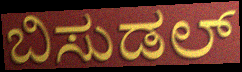
ಬಿಸುಡಲ್